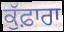
ਕੁੱਫ਼ਾਰਾ